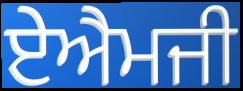
ਏਐਮਜੀ